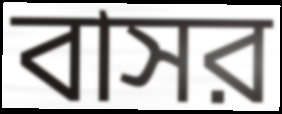
বাসর